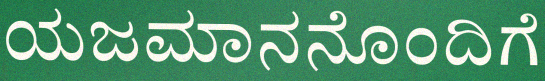
ಯಜಮಾನನೊಂದಿಗೆ